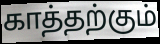
காத்தற்கும்